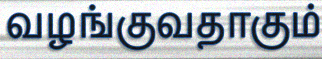
வழங்குவதாகும்